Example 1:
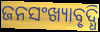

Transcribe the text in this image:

ଜନସଂଖ୍ୟାବୃଦ୍ଧି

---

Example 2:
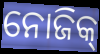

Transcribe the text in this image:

ନୋଜିକ୍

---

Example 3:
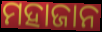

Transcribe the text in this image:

ମହାଜାନ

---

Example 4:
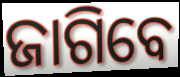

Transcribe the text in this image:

ଜାଗିବେ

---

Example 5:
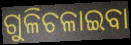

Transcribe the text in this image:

ଗୁଳିଚଳାଇବା